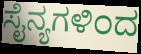
ಸೈನ್ಯಗಳಿಂದ